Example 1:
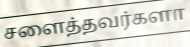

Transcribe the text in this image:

சளைத்தவர்களா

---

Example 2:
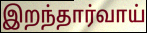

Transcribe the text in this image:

இறந்தார்வாய்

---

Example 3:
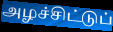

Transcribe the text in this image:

அழச்சிட்டுப்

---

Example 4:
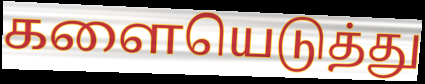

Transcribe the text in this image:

களையெடுத்து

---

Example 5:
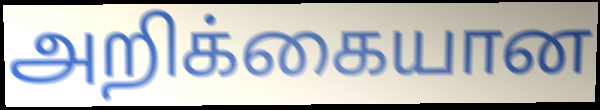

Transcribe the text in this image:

அறிக்கையான